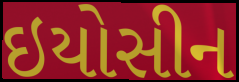
ઇયોસીન